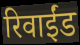
रिवाईंड